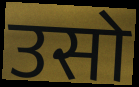
उसो